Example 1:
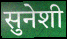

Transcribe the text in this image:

सुनेशी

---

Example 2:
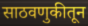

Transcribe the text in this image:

साठवणुकीतून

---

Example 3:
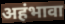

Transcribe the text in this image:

अहंभावा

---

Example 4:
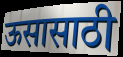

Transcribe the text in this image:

ऊसासाठी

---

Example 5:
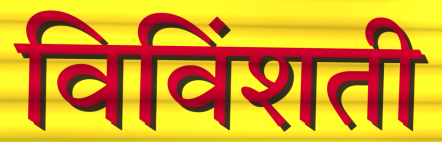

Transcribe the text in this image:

विविंशती